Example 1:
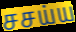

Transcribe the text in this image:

சசய்ய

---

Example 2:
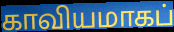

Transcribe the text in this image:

காவியமாகப்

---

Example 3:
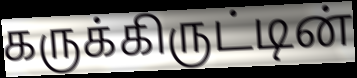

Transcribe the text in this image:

கருக்கிருட்டின்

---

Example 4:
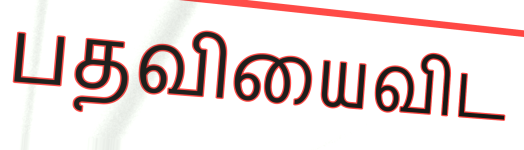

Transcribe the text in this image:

பதவியைவிட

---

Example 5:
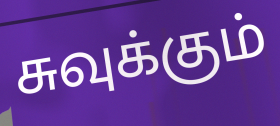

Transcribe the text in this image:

சுவுக்கும்